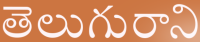
తెలుగురాని